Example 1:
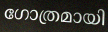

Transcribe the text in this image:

ഗോത്രമായി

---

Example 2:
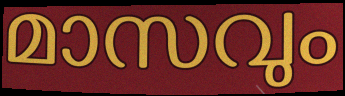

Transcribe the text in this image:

മാസവും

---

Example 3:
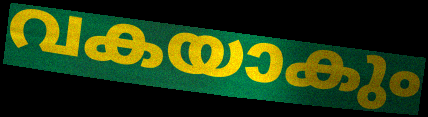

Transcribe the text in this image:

വകയാകും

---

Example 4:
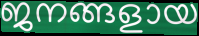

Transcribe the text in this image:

ജനങ്ങളായ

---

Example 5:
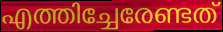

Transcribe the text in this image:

എത്തിച്ചേരേണ്ടത്